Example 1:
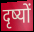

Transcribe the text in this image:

दृष्यों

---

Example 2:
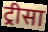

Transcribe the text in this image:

ट्रीसा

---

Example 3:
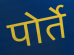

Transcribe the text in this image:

पोर्ते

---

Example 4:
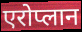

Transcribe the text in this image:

एरोप्लान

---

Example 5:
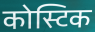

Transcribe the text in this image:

कोस्टिक